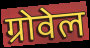
ग्रोवेल